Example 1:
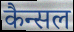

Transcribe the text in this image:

कैन्सल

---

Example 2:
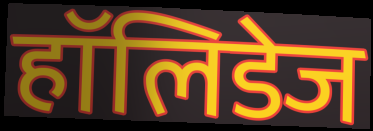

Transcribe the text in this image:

हॉलिडेज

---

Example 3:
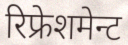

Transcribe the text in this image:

रिफ्रेशमेन्ट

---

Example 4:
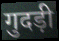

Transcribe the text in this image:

गुदड़ी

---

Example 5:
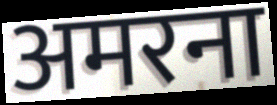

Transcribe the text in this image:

अमरना